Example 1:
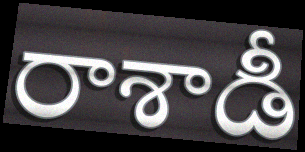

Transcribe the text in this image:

రాశాడీ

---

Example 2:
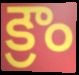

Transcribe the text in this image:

క్రౌం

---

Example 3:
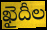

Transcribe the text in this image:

ఖైదీల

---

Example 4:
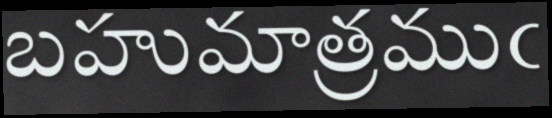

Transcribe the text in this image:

బహుమాత్రముఁ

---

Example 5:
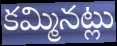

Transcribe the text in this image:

కమ్మినట్లు